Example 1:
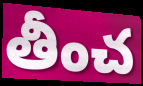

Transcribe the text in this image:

తీంచ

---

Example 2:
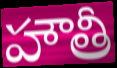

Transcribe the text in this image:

హౌతీ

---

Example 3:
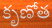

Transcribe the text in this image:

కృణోత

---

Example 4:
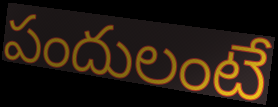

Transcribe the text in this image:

పందులంటే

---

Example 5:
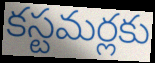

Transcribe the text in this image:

కస్టమర్లకు